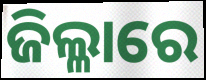
ଜିଲ୍ଳାରେ